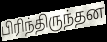
பிரிந்திருந்தன